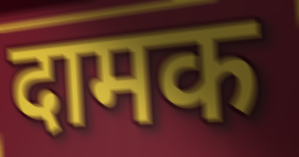
दामक